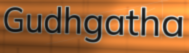
Gudhgatha